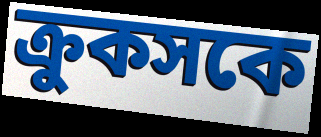
ক্রুকসকে